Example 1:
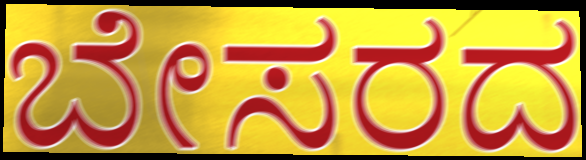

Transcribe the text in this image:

ಬೇಸರದ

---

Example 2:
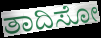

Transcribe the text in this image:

ತಾದಿಸೋ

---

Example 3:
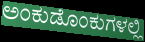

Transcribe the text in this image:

ಅಂಕುಡೊಂಕುಗಳಲ್ಲಿ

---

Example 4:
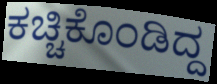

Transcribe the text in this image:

ಕಚ್ಚಿಕೊಂಡಿದ್ದ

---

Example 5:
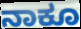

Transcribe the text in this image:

ನಾಕೂ